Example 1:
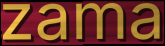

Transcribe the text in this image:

zama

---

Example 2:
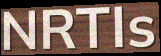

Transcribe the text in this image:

NRTIs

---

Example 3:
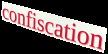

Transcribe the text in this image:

confiscation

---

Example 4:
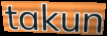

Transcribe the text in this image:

takun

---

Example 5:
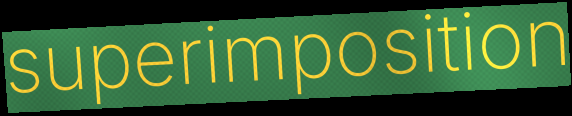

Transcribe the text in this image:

superimposition